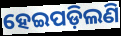
ହେଇପଡ଼ିଲଣି